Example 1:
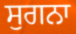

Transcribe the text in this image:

ਸੁਗਨਾ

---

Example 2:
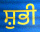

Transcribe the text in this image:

ਸ਼ੁਭੀ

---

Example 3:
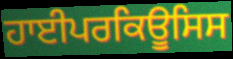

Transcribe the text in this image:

ਹਾਈਪਰਕਿਊਸਿਸ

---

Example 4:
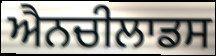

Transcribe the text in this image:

ਐਨਚੀਲਾਡਸ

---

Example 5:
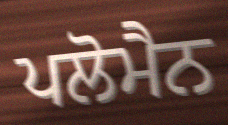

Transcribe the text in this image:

ਪਲੋਮੈਨ